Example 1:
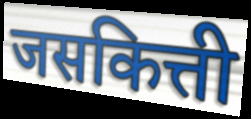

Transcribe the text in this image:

जसकित्ती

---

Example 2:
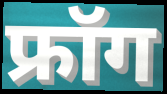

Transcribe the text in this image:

फ्रॉग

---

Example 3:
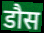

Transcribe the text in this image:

डौस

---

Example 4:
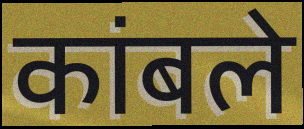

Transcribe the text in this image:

कांबले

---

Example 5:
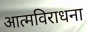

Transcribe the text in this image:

आत्मविराधना